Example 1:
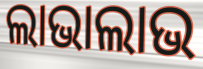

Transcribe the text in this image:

ଲାଭାଲାଭ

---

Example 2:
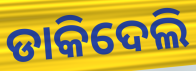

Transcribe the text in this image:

ଡାକିଦେଲି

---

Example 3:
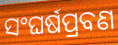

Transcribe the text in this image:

ସଂଘର୍ଷପ୍ରବଣ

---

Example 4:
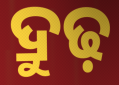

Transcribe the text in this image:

ଦ୍ରୁଢ଼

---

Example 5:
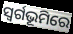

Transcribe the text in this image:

ସ୍ଵର୍ଗଭୂମିରେ